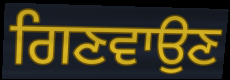
ਗਿਣਵਾਉਣ